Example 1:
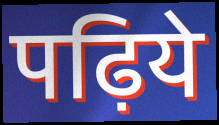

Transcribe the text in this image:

पढ़िये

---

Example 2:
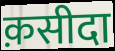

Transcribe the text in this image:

क़सीदा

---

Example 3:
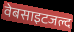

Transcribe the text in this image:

वेबसाइटजल्द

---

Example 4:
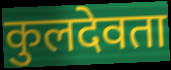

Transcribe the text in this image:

कुलदेवता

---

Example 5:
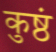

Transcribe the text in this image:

कुष्ठं